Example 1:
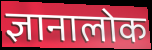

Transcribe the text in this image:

ज्ञानालोक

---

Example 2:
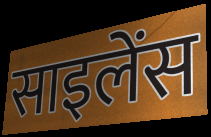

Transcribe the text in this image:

साइलेंस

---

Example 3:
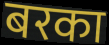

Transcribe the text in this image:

बरका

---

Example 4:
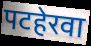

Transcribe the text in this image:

पटहेरवा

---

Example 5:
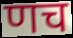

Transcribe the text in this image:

णच